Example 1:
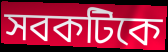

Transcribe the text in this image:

সবকটিকে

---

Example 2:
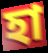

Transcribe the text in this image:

হা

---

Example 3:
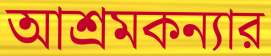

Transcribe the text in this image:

আশ্রমকন্যার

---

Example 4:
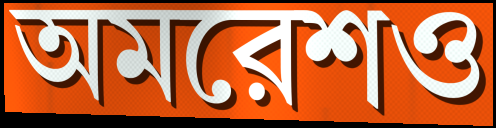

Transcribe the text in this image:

অমরেশও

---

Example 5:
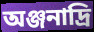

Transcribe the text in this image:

অঞ্জনাদ্রি